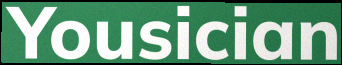
Yousician